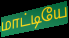
மாட்டியே